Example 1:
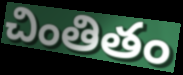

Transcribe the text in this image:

చింతితం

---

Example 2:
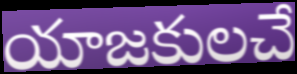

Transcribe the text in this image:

యాజకులచే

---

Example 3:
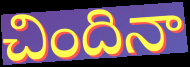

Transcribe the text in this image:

చిందినా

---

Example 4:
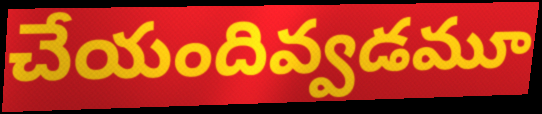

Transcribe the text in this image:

చేయందివ్వడమూ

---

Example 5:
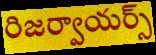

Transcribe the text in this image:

రిజర్వాయర్స్